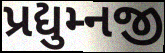
પ્રદ્યુમ્નજી